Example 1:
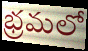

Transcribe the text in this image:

భ్రమలో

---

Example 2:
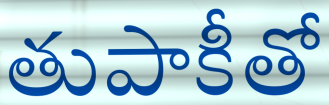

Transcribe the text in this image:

తుపాకీతో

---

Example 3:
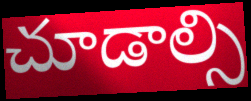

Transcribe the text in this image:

చూడాల్సి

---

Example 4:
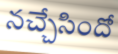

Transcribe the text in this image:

నచ్చేసిందో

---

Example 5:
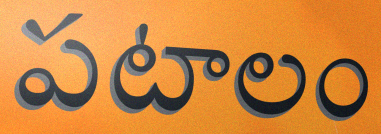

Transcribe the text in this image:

పటాలం